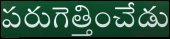
పరుగెత్తించేడు